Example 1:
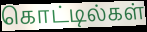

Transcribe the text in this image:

கொட்டில்கள்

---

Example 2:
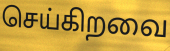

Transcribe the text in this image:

செய்கிறவை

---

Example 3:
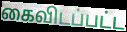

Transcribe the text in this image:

கைவிடப்பட்ட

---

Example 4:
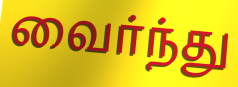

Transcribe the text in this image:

வைர்ந்து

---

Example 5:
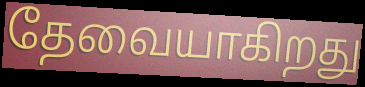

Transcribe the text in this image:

தேவையாகிறது